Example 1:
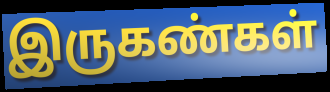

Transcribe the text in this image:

இருகண்கள்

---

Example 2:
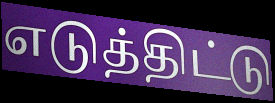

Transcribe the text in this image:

எடுத்திட்டு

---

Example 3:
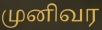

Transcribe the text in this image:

முனிவர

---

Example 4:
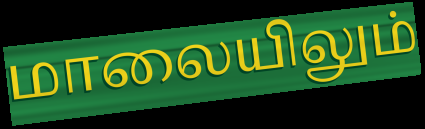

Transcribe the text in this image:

மாலையிலும்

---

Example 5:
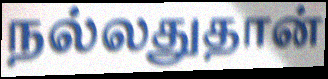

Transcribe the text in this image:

நல்லதுதான்